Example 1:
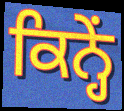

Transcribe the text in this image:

ਕਿਨ੍ਹੇਂ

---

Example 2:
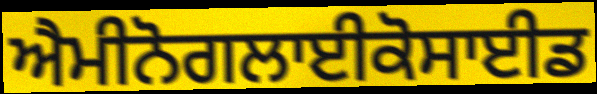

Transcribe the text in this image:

ਐਮੀਨੋਗਲਾਈਕੋਸਾਈਡ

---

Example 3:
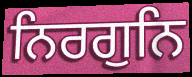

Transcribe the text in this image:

ਨਿਰਗੁਨਿ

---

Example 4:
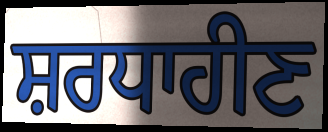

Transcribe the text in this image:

ਸ਼ਰਧਾਹੀਣ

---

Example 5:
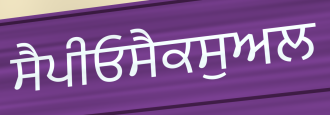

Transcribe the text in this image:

ਸੈਪੀਓਸੈਕਸੁਅਲ